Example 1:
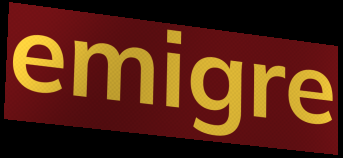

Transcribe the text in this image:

emigre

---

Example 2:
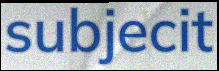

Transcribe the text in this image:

subjecit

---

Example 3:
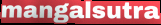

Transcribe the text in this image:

mangalsutra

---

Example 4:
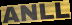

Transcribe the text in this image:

ANLL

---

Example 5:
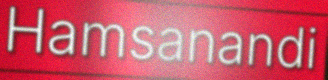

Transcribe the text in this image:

Hamsanandi